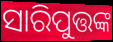
ସାରିପୁତ୍ତଙ୍କ